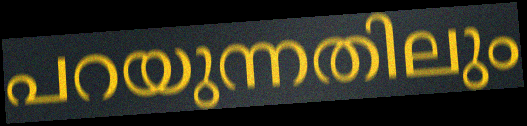
പറയുന്നതിലും